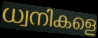
ധ്വനികളെ